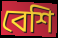
বেশি